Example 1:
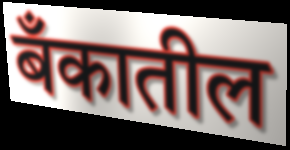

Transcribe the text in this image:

बँकातील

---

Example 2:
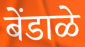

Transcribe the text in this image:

बेंडाळे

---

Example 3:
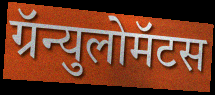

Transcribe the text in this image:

ग्रॅन्युलोमॅटस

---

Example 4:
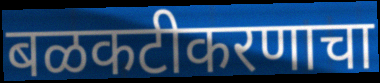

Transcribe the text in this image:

बळकटीकरणाचा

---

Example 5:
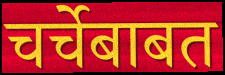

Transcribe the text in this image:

चर्चेबाबत